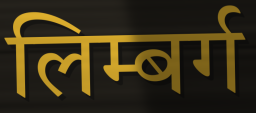
लिम्बर्ग